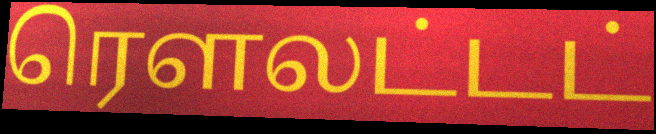
ரௌலட்டட்